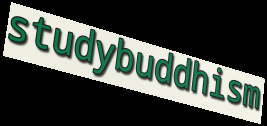
studybuddhism